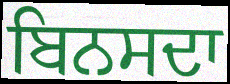
ਬਿਨਸਦਾ